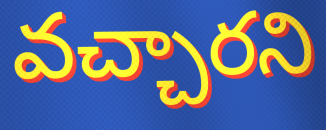
వచ్చారని